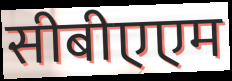
सीबीएएम